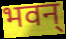
भवन्